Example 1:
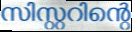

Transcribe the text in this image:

സിസ്റ്ററിന്റെ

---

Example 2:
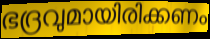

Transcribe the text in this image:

ഭദ്രവുമായിരിക്കണം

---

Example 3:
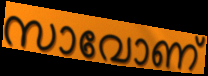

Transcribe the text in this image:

സാവോണ്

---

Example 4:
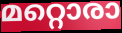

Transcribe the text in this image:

മറ്റൊരാ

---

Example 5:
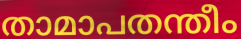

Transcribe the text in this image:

താമാപതന്തീം